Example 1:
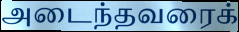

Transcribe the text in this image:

அடைந்தவரைக்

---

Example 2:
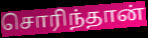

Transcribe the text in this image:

சொரிந்தான்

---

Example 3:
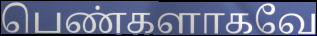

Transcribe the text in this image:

பெண்களாகவே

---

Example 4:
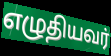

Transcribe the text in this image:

எழுதியவர்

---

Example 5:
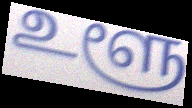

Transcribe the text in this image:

உளூ